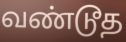
வண்டூத